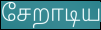
சேறாடிய